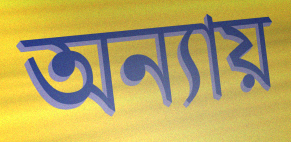
অন্যায়